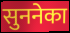
सुननेका